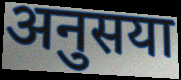
अनुसया